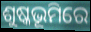
ଶୁଷ୍କଭୂମିରେ